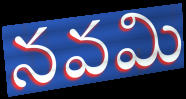
నవమి